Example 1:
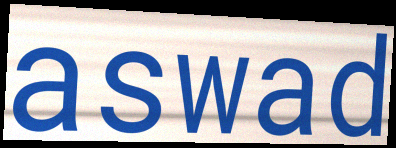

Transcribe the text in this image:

aswad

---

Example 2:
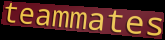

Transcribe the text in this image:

teammates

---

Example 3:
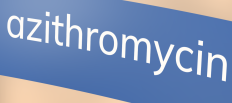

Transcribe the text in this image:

azithromycin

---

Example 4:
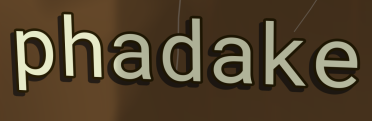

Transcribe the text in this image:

phadake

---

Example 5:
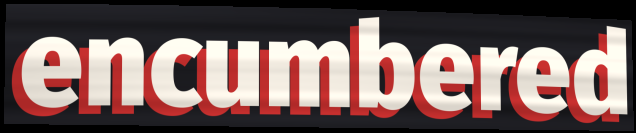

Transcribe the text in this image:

encumbered